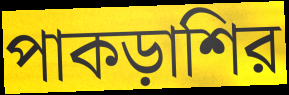
পাকড়াশির